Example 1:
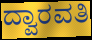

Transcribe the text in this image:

ದ್ವಾರವತಿ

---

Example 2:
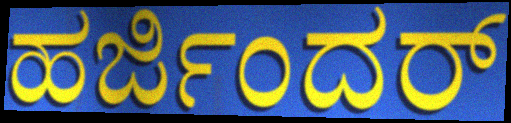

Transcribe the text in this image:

ಹರ್ಜಿಂದರ್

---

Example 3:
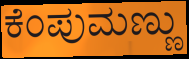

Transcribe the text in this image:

ಕೆಂಪುಮಣ್ಣು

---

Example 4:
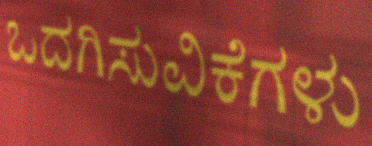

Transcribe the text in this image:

ಒದಗಿಸುವಿಕೆಗಳು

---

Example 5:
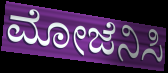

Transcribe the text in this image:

ಮೋಜೆನಿಸಿ